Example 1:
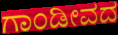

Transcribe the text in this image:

ಗಾಂಡೀವದ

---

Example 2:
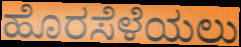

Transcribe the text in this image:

ಹೊರಸೆಳೆಯಲು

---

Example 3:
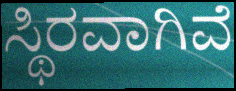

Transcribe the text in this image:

ಸ್ಥಿರವಾಗಿವೆ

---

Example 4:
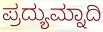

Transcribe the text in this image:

ಪ್ರದ್ಯುಮ್ನಾದಿ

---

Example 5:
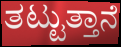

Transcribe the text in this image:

ತಟ್ಟುತ್ತಾನೆ